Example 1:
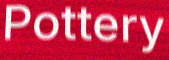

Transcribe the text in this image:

Pottery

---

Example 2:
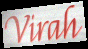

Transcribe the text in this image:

Virah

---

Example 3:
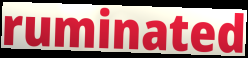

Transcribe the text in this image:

ruminated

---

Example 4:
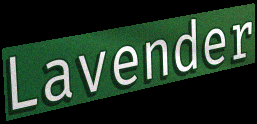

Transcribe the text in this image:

Lavender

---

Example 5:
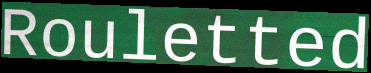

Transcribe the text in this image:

Rouletted